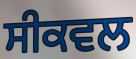
ਸੀਕਵਲ